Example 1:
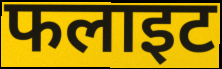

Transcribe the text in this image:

फलाइट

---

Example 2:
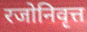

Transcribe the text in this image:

रजोनिवृत्त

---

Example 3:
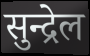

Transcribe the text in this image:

सुन्द्रेल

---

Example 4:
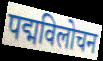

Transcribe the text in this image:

पद्मविलोचन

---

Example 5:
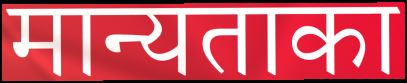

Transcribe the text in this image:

मान्यताका